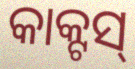
କାକ୍ଟସ୍